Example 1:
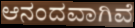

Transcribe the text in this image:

ಆನಂದವಾಗಿವೆ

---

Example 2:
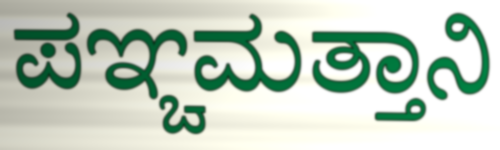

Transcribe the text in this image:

ಪಞ್ಚಮತ್ತಾನಿ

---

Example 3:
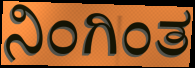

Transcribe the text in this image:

ನಿಂಗಿಂತ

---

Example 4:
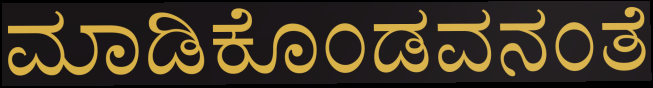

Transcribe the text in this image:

ಮಾಡಿಕೊಂಡವನಂತೆ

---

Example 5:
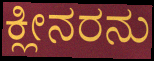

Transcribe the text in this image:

ಕ್ಲೀನರನು